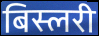
बिस्लरी